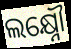
ଲକ୍ଷ୍ନୌ